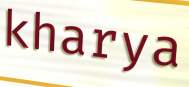
kharya